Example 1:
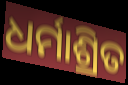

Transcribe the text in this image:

ଧର୍ମାଶ୍ରିତ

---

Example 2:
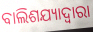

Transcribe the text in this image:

ବାଲିଶଯ୍ୟାଦ୍ଵାରା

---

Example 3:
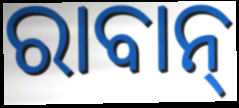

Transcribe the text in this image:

ରାବାନ୍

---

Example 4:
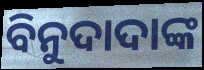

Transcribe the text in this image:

ବିନୁଦାଦାଙ୍କ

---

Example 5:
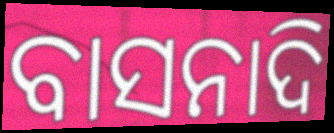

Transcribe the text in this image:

ବାସନାଦି